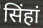
सिंहां